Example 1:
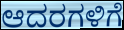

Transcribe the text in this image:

ಆದರಗಳಿಗೆ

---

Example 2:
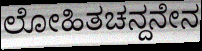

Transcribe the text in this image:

ಲೋಹಿತಚನ್ದನೇನ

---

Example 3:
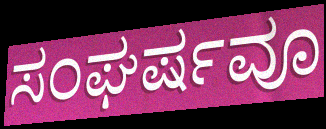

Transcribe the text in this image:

ಸಂಘರ್ಷವೂ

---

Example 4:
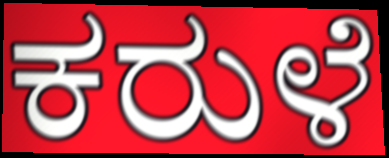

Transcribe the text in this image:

ಕರುಳೆ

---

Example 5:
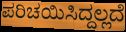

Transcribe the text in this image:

ಪರಿಚಯಿಸಿದ್ದಲ್ಲದೆ